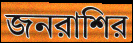
জনরাশির